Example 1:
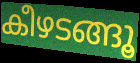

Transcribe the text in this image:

കീഴടങ്ങൂ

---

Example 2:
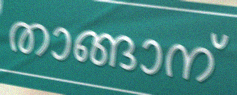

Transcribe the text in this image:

താങ്ങാന്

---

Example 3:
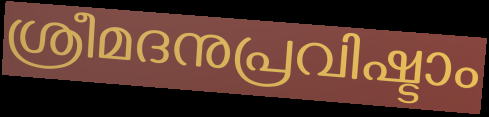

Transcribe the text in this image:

ശ്രീമദനുപ്രവിഷ്ടാം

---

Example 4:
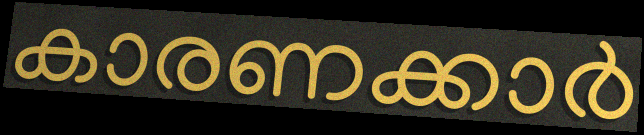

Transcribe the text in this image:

കാരണക്കാർ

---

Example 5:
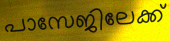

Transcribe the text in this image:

പാസേജിലേക്ക്